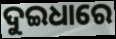
ଦୁଇଧାରେ